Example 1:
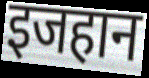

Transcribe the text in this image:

इजहान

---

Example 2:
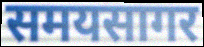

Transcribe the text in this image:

समयसागर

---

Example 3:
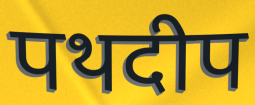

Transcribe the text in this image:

पथदीप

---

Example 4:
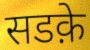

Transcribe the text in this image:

सडक़े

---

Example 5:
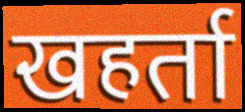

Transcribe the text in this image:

खहर्ता